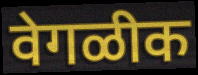
वेगळीक